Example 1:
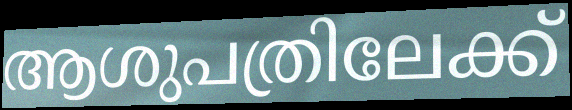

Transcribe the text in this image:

ആശുപത്രിലേക്ക്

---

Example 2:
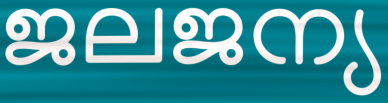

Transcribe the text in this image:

ജലജന്യ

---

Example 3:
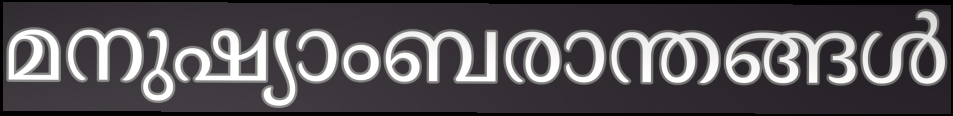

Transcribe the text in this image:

മനുഷ്യാംബരാന്തങ്ങൾ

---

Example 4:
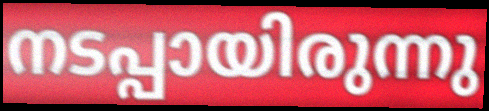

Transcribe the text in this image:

നടപ്പായിരുന്നു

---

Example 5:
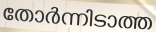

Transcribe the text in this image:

തോർന്നിടാത്ത